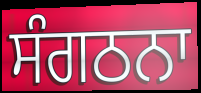
ਸੰਗਠਨਾ